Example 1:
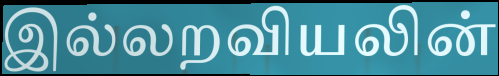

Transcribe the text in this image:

இல்லறவியலின்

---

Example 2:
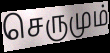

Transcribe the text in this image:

செருமும்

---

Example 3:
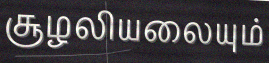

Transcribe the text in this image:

சூழலியலையும்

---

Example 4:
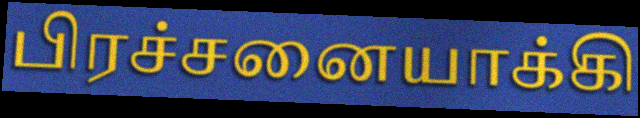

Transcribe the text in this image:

பிரச்சனையாக்கி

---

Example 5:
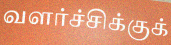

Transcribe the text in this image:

வளர்ச்சிக்குக்